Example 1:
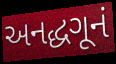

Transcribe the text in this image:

અનદ્ધગૂનં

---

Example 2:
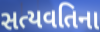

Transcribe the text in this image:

સત્યવતિના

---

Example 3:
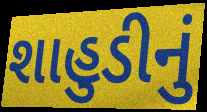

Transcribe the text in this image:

શાહુડીનું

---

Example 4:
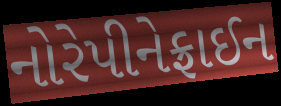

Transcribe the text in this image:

નોરેપીનેફ્રાઈન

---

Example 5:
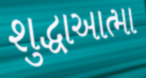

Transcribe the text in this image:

શુદ્ધાઆત્મા